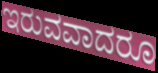
ಇರುವವಾದರೂ